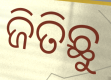
ଜିତିଛୁ